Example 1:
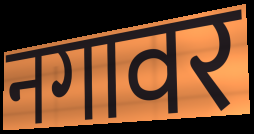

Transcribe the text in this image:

नगावर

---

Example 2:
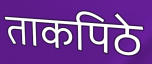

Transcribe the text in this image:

ताकपिठे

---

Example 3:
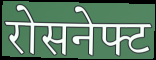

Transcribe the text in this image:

रोसनेफ्ट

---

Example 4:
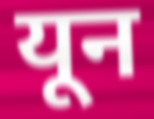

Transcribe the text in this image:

यून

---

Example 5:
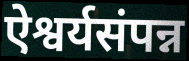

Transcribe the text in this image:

ऐश्वर्यसंपन्न